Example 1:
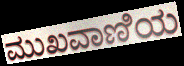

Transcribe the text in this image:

ಮುಖವಾಣಿಯ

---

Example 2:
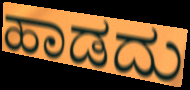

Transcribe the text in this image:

ಹಾಡದು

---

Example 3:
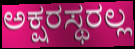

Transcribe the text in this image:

ಅಕ್ಷರಸ್ಥರಲ್ಲ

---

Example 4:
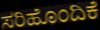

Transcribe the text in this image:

ಸರಿಹೊಂದಿಕೆ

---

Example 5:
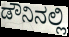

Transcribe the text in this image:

ಡೌನಿನಲ್ಲಿ